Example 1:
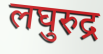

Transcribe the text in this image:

लघुरुद्र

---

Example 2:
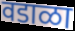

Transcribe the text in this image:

वडाळा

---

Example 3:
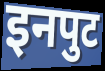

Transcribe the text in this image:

इनपुट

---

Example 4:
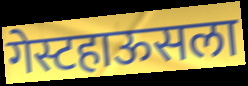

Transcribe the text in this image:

गेस्टहाऊसला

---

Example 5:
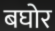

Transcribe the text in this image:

बघोर